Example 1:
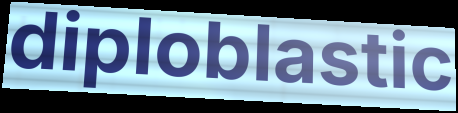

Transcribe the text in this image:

diploblastic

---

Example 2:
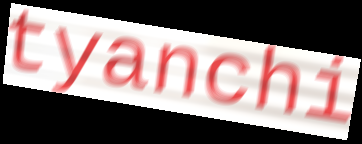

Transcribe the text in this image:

tyanchi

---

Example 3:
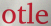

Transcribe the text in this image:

otle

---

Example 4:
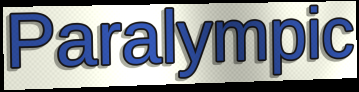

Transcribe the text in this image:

Paralympic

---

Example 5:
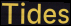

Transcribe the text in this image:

Tides